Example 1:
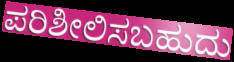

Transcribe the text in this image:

ಪರಿಶೀಲಿಸಬಹುದು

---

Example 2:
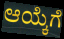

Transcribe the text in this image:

ಆಯ್ಕೆಗೆ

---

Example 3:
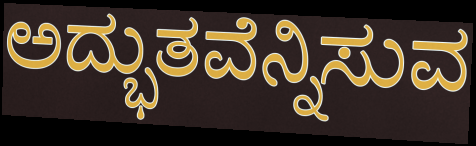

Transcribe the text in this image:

ಅದ್ಭುತವೆನ್ನಿಸುವ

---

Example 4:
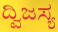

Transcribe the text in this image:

ದ್ವಿಜಸ್ಯ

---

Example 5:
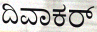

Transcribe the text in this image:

ದಿವಾಕರ್